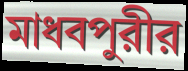
মাধবপুরীর